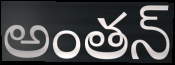
అంతన్